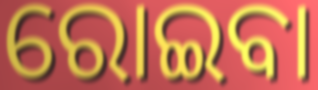
ରୋଇବା